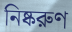
নিষ্করুণ